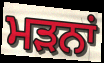
ਮੜਨਾਂ